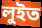
লুইত